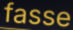
fasse